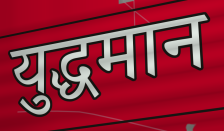
युद्धमान